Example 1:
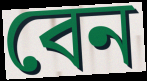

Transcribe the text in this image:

বেন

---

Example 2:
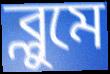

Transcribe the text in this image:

ব্লুমে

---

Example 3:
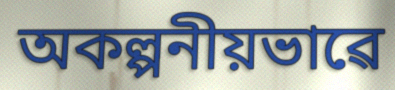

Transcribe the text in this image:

অকল্পনীয়ভাৱে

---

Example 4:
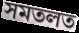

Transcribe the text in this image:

সমতলত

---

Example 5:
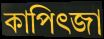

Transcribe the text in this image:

কাপিৎজা